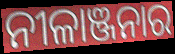
ନୀଳାଞ୍ଜନାର